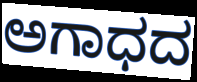
ಅಗಾಧದ